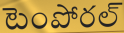
టెంపోరల్